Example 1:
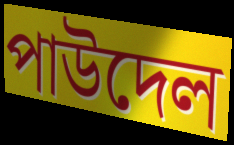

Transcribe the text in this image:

পাউদেল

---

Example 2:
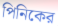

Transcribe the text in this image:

পিনিকের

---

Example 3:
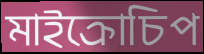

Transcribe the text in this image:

মাইক্রোচিপ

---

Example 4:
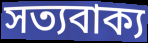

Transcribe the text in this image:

সত্যবাক্য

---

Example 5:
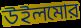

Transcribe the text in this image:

উইলমোর